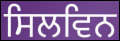
ਸਿਲਵਿਨ